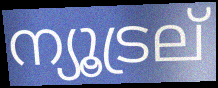
ന്യൂട്രല്